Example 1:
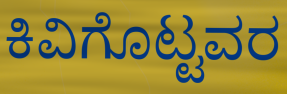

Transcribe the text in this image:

ಕಿವಿಗೊಟ್ಟವರ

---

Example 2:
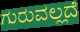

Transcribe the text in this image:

ಗುರುವಲ್ಲದೆ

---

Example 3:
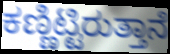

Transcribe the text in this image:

ಕಣ್ಣಿಟ್ಟಿರುತ್ತಾನೆ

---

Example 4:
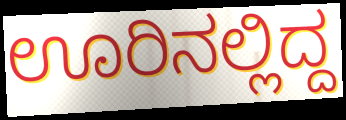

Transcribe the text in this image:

ಊರಿನಲ್ಲಿದ್ದ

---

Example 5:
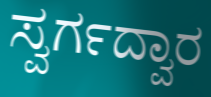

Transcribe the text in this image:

ಸ್ವರ್ಗದ್ವಾರ